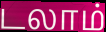
டலாம்